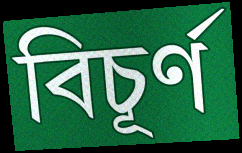
বিচূৰ্ণ